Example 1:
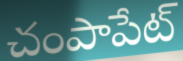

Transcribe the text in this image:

చంపాపేట్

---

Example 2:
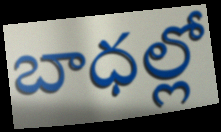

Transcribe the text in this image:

బాధల్లో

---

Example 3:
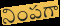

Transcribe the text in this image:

నింపగా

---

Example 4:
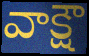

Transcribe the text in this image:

వాక్షౌ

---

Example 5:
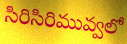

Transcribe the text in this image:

సిరిసిరిమువ్వలో